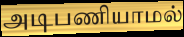
அடிபணியாமல்